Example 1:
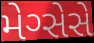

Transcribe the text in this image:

મેગ્સેસે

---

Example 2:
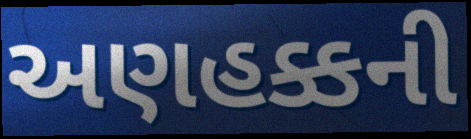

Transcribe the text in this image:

અણહક્કની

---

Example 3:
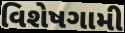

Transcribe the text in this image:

વિશેષગામી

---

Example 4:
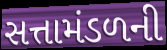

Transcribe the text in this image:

સત્તામંડળની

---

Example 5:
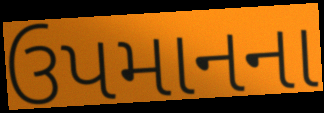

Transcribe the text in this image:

ઉપમાનના